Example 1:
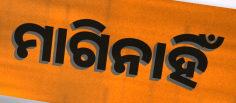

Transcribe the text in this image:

ମାଗିନାହିଁ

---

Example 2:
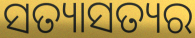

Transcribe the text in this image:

ସତ୍ୟାସତ୍ୟର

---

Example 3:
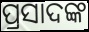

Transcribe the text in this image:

ପ୍ରସାଦଙ୍କ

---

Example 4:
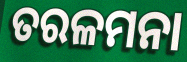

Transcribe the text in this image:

ତରଳମନା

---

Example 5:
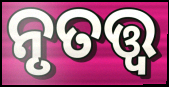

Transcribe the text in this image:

ନୃତତ୍ତ୍ୱ